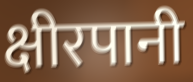
क्षीरपानी